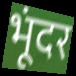
भूंदर